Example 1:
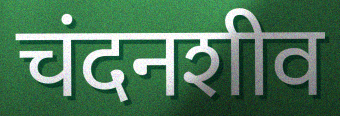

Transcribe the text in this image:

चंदनशीव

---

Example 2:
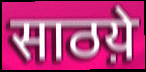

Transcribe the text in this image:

साठय़े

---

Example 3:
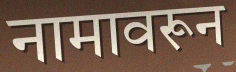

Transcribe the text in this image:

नामावरून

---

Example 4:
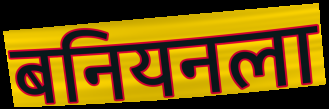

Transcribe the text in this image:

बनियनला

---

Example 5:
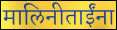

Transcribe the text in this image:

मालिनीताईंना